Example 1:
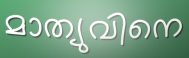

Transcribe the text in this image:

മാത്യുവിനെ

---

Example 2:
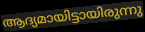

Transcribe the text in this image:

ആദ്യമായിട്ടായിരുന്നു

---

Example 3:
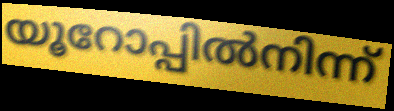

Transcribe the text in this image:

യൂറോപ്പിൽനിന്ന്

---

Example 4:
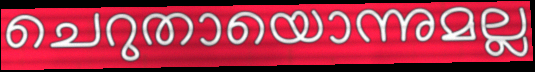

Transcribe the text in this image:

ചെറുതായൊന്നുമല്ല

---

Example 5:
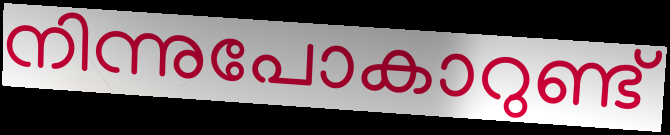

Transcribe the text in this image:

നിന്നുപോകാറുണ്ട്